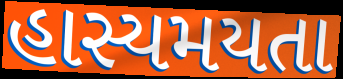
હાસ્યમયતા